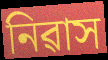
নিৱাস